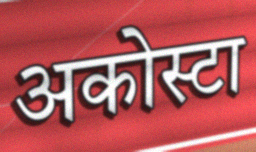
अकोस्टा